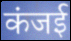
कंजई